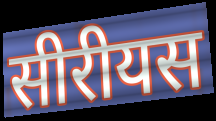
सीरीयस